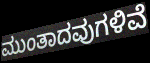
ಮುಂತಾದವುಗಳಿವೆ